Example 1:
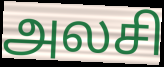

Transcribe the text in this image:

அலசி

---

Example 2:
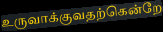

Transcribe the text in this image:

உருவாக்குவதற்கென்றே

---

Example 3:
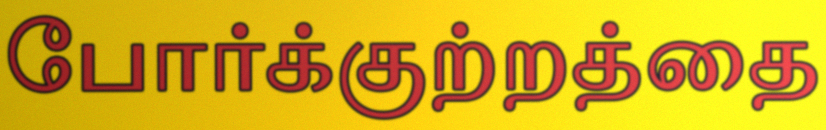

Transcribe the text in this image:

போர்க்குற்றத்தை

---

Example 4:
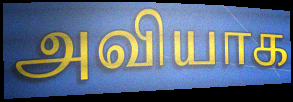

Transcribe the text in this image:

அவியாக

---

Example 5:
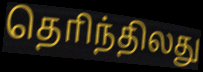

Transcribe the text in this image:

தெரிந்திலது